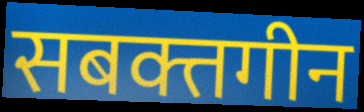
सबक्तगीन